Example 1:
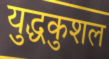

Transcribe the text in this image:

युद्धकुशल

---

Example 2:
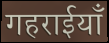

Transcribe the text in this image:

गहराईयाँ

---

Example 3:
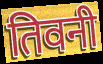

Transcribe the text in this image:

तिवनी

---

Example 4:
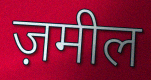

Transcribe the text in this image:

ज़मील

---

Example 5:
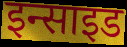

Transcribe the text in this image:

इन्साइड